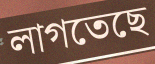
লাগতেছে